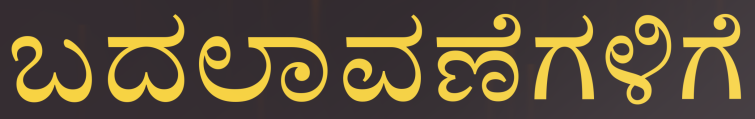
ಬದಲಾವಣೆಗಳಿಗೆ